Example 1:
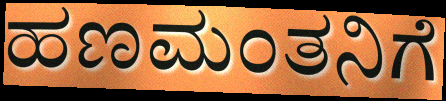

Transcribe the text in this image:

ಹಣಮಂತನಿಗೆ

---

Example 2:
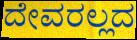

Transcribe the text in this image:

ದೇವರಲ್ಲದ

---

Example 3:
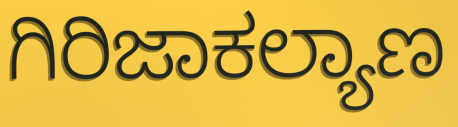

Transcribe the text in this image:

ಗಿರಿಜಾಕಲ್ಯಾಣ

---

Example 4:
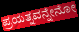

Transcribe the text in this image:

ಪ್ರಯತ್ನವನ್ನೇನೋ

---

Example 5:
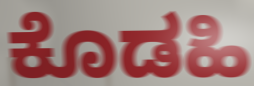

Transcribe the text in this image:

ಕೊಡಹಿ